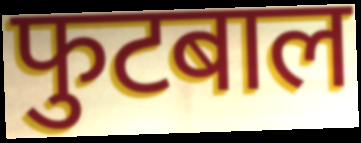
फुटबाल